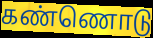
கண்ணொடு